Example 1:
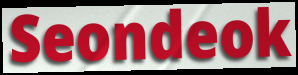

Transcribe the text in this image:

Seondeok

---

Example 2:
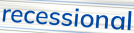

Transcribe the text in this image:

recessional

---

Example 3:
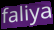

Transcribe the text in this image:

faliya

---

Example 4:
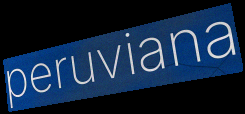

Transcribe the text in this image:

peruviana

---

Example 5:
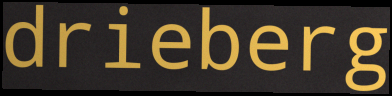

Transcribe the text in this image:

drieberg